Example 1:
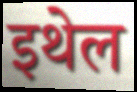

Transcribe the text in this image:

इथेल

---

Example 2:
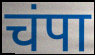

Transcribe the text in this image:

चंपा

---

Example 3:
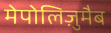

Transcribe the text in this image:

मेपोलिज़ुमैब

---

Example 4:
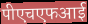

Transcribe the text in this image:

पीएचएफआई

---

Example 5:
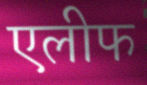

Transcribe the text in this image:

एलीफ